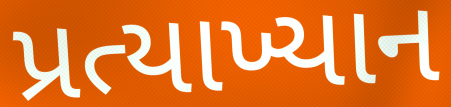
પ્રત્યાખ્યાન